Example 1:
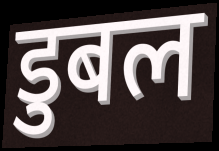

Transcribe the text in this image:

डुबल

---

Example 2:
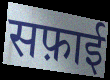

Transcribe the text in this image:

सफ़ाई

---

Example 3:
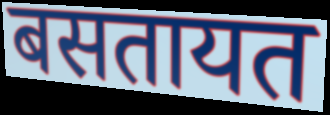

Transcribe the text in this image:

बसतायत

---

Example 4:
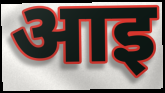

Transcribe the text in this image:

आइ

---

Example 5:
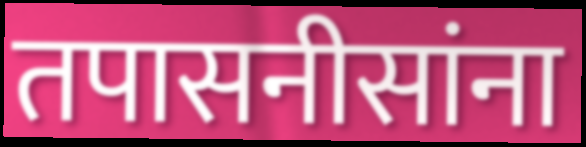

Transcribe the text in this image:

तपासनीसांना